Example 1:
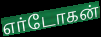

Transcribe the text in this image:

எர்டோகன்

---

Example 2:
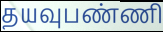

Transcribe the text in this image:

தயவுபண்ணி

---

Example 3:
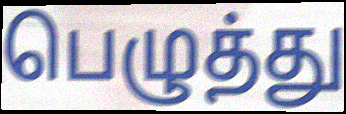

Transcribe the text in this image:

பெழுத்து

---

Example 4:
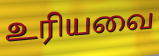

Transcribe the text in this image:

உரியவை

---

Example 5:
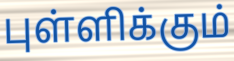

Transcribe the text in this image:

புள்ளிக்கும்